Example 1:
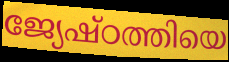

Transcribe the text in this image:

ജ്യേഷ്ഠത്തിയെ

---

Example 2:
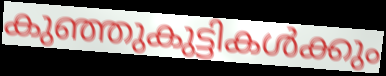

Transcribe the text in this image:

കുഞ്ഞുകുട്ടികൾക്കും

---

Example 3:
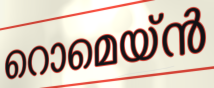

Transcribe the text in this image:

റൊമെയ്ൻ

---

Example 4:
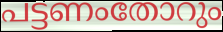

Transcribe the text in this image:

പട്ടണംതോറും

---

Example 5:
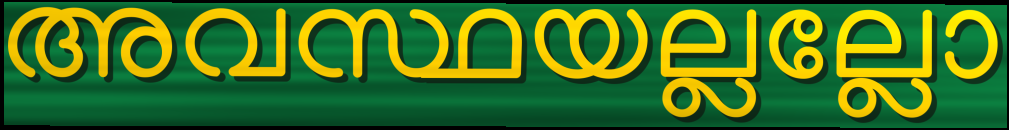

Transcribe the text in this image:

അവസ്ഥയല്ലല്ലോ